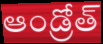
ఆండ్రోత్